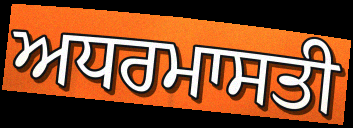
ਅਧਰਮਾਸਤੀ